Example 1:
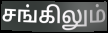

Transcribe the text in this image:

சங்கிலும்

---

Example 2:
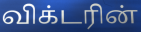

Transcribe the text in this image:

விக்டரின்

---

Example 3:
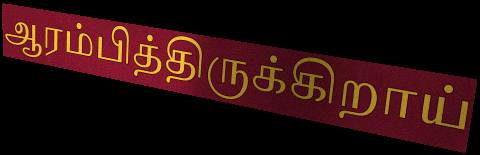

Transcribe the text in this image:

ஆரம்பித்திருக்கிறாய்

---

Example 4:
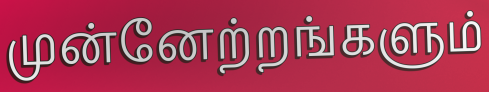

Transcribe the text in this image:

முன்னேற்றங்களும்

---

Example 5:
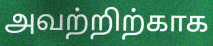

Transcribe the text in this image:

அவற்றிற்காக